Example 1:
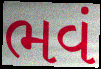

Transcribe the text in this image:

ભવં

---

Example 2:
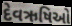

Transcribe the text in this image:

દેવઋષિઓ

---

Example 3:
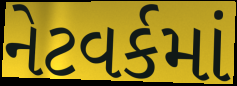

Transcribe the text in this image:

નેટવર્કમાં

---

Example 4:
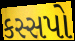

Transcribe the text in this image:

કસ્સપો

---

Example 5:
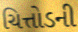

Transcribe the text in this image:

ચિત્તોડની